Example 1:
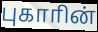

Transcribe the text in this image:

புகாரின்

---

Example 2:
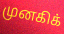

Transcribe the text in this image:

முனகிக்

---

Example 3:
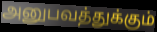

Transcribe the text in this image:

அனுபவத்துக்கும்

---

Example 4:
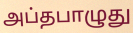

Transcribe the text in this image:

அப்தபாழுது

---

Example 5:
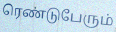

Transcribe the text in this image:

ரெண்டுபேரும்